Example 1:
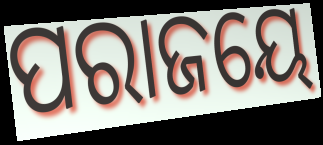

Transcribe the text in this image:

ପରାଜୟେ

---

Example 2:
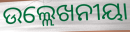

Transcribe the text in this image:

ଉଲ୍ଲେଖନୀୟା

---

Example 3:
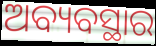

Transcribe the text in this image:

ଅବ୍ୟବସ୍ଥାର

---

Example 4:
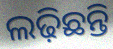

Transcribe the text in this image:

ଲଢ଼ିଛନ୍ତି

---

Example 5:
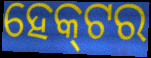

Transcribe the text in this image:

ହେକ୍‌ଟର